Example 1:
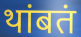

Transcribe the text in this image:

थांबतं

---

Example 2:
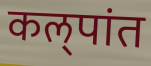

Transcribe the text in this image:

कल्पांत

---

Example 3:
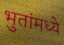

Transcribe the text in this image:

भुतांमध्ये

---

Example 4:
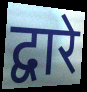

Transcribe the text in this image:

द्वारे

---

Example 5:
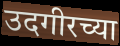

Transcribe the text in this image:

उदगीरच्या